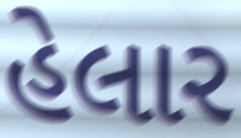
હેલાર